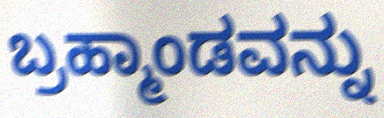
ಬ್ರಹ್ಮಾಂಡವನ್ನು